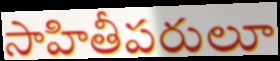
సాహితీపరులూ